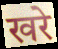
खरे